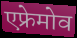
एफ्रेमोव